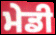
ਮੇਡੀ